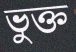
ভুক্ত